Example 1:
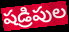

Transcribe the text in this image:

షడ్రిపుల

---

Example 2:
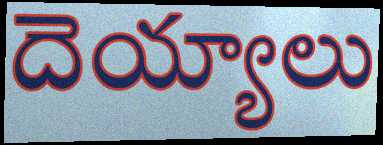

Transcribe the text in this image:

దెయ్యాలు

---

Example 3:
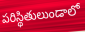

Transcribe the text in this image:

పరిస్థితులుండాలో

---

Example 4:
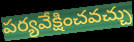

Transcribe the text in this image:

పర్యవేక్షించవచ్చు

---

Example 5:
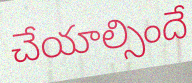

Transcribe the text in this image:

చేయాల్సిందే